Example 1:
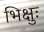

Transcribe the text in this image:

भिक्षुः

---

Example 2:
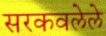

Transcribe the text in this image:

सरकवलेले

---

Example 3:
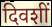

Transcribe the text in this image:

दिवशीं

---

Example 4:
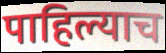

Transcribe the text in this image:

पाहिल्याच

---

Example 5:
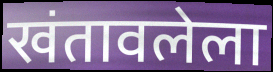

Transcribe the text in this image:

खंतावलेला